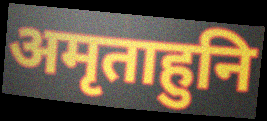
अमृताहुनि